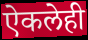
ऐकलेही